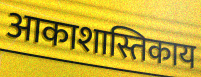
आकाशास्तिकाय